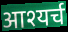
आश्यर्च